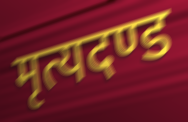
मृत्यदण्ड